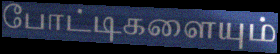
போட்டிகளையும்